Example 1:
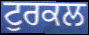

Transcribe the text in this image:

ਟੁਰਕਲ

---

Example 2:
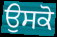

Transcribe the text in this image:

ਉਸਕੋ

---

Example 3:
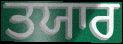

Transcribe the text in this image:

ਤਯਾਰ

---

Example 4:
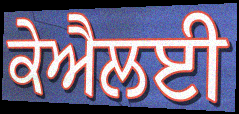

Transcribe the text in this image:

ਕੇਐਲਈ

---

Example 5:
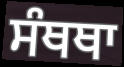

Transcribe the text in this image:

ਸੰਥਥਾ